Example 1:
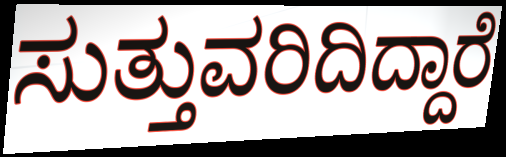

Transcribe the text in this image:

ಸುತ್ತುವರಿದಿದ್ದಾರೆ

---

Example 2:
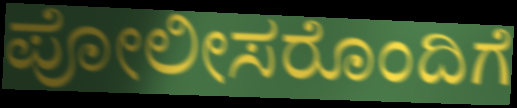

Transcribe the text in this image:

ಪೋಲೀಸರೊಂದಿಗೆ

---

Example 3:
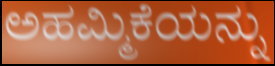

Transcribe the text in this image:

ಅಹಮ್ಮಿಕೆಯನ್ನು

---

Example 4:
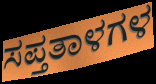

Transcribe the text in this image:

ಸಪ್ತತಾಳಗಳ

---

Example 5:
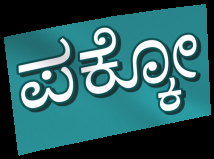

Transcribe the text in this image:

ಪಕ್ಕೋ